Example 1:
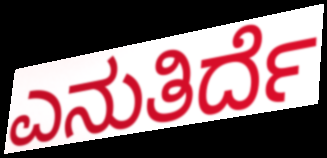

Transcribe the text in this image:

ಎನುತಿರ್ದೆ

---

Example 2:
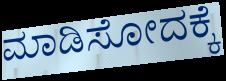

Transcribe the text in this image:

ಮಾಡಿಸೋದಕ್ಕೆ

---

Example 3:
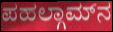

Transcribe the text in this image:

ಪಹಲ್ಗಾಮ್‌ನ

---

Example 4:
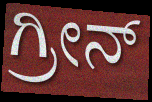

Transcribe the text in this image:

ಗ್ರೀನ್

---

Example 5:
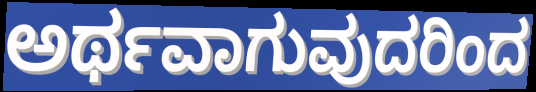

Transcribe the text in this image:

ಅರ್ಥವಾಗುವುದರಿಂದ